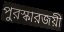
পুরস্কারজয়ী